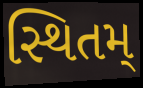
સ્થિતમ્